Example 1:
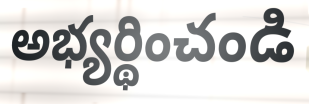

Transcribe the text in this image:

అభ్యర్థించండి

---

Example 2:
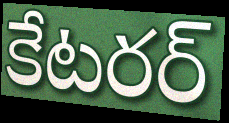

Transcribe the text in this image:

కేటరర్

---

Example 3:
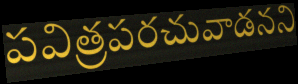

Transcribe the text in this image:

పవిత్రపరచువాడనని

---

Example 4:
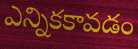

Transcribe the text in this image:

ఎన్నికకావడం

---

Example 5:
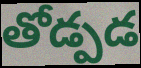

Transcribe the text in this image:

తోడ్పడ